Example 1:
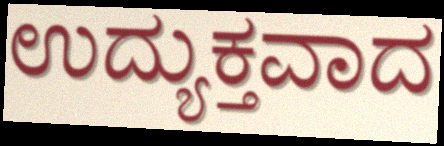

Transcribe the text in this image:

ಉದ್ಯುಕ್ತವಾದ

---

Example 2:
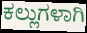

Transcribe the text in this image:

ಕಲ್ಲುಗಳಾಗಿ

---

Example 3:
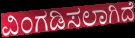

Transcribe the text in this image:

ವಿಂಗಡಿಸಲಾಗಿದೆ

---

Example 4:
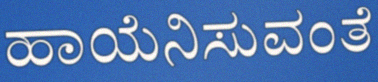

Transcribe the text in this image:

ಹಾಯೆನಿಸುವಂತೆ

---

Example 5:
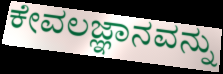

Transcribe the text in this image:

ಕೇವಲಜ್ಞಾನವನ್ನು